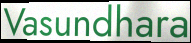
Vasundhara